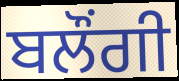
ਬਲੌਂਗੀ